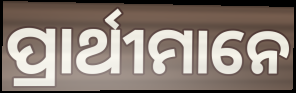
ପ୍ରାର୍ଥୀମାନେ